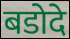
बडोदे